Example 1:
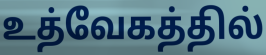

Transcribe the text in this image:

உத்வேகத்தில்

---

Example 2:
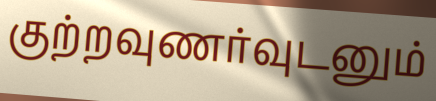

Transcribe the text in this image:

குற்றவுணர்வுடனும்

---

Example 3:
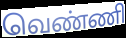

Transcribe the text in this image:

வெண்ணி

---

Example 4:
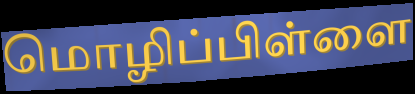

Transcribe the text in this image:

மொழிப்பிள்ளை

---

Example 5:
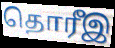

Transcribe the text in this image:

தொரீஇ